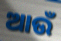
ଆଉଁ